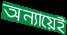
অন্যায়েই